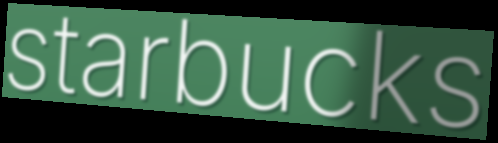
starbucks